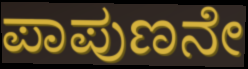
ಪಾಪುಣನೇ